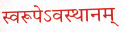
स्वरूपेऽवस्थानम्